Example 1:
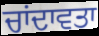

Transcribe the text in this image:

ਚਾਂਦਾਵਤਾ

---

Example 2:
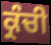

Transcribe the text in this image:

ਕ੍ਰੰਚੀ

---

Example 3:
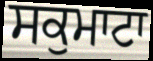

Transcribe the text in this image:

ਸਕੁਮਾਟਾ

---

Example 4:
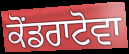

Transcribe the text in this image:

ਕੋਂਡਰਾਟੋਵਾ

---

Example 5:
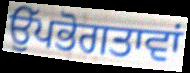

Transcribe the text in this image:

ਉੱਪਭੋਗਤਾਵਾਂ